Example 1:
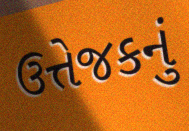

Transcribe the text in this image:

ઉત્તેજકનું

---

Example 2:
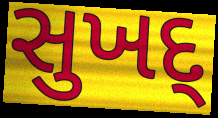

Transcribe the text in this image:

સુખદ્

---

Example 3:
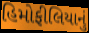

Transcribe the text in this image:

હિમોફીલિયાનું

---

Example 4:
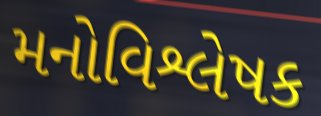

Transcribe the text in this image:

મનોવિશ્લેષક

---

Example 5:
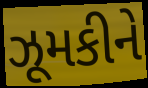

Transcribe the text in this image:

ઝૂમકીને